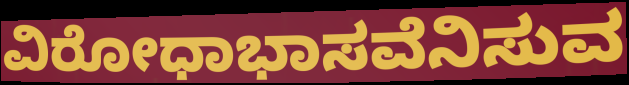
ವಿರೋಧಾಭಾಸವೆನಿಸುವ